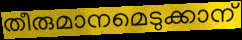
തീരുമാനമെടുക്കാന്